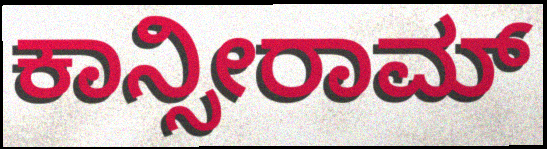
ಕಾನ್ಸೀರಾಮ್